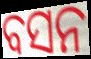
ବସନ